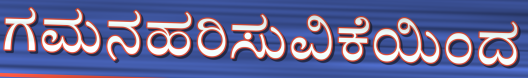
ಗಮನಹರಿಸುವಿಕೆಯಿಂದ